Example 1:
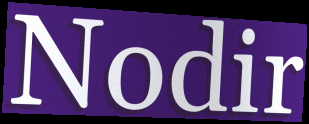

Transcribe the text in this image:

Nodir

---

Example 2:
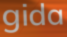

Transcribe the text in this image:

gida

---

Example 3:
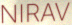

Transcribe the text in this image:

NIRAV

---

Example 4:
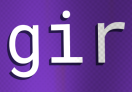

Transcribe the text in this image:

gir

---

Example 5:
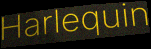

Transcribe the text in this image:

Harlequin